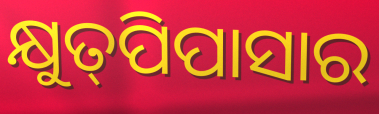
କ୍ଷୁତ୍‌ପିପାସାର